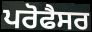
ਪਰੋਫੈਸਰ